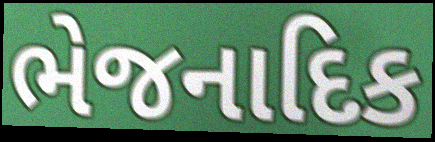
ભેજનાદિક